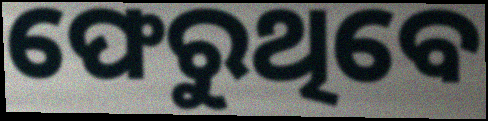
ଫେରୁଥିବେ